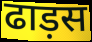
ढाड़स